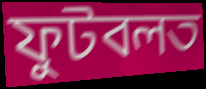
ফুটবলত